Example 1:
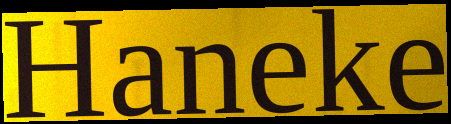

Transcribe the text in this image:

Haneke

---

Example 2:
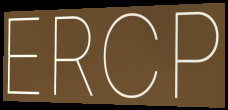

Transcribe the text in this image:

ERCP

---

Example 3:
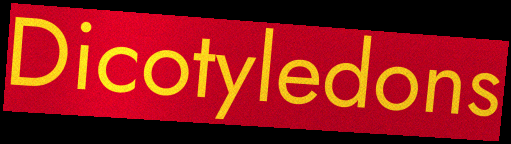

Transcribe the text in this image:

Dicotyledons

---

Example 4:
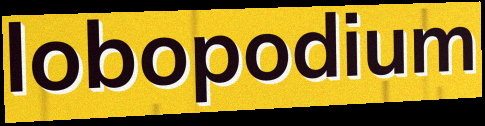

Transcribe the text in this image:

lobopodium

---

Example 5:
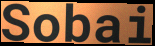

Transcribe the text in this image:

Sobai